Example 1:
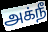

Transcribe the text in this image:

அக்நீ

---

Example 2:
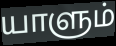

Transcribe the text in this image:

யாளும்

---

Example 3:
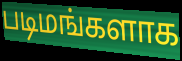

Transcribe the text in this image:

படிமங்களாக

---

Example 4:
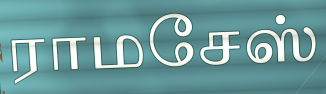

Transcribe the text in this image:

ராமசேஸ்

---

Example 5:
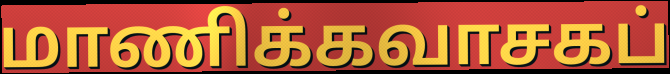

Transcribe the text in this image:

மாணிக்கவாசகப்